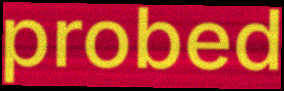
probed